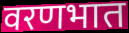
वरणभात